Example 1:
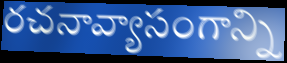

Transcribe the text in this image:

రచనావ్యాసంగాన్ని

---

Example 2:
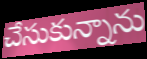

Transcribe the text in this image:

చేసుకున్నాను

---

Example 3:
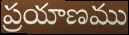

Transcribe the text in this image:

ప్రయాణము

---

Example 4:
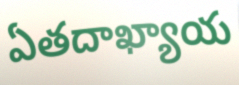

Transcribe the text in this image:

ఏతదాఖ్యాయ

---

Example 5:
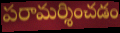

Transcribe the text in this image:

పరామర్శించడం